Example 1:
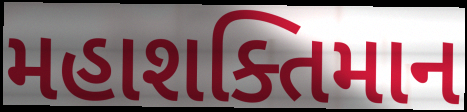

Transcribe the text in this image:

મહાશક્તિમાન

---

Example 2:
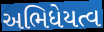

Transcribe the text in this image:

અભિધેયત્વ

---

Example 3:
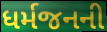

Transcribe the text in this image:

ધર્મજનની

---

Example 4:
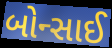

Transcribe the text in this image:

બોન્સાઈ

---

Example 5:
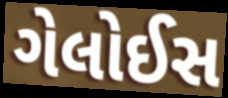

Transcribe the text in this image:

ગેલોઈસ